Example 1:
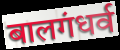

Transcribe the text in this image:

बालगंधर्व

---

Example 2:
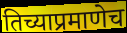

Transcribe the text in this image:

तिच्याप्रमाणेच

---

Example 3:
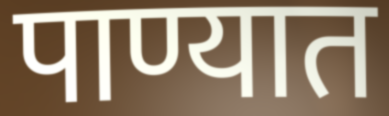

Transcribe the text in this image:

पाण्यात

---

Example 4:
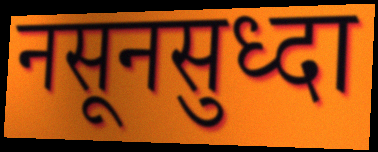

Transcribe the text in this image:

नसूनसुध्दा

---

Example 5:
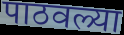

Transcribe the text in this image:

पाठवल्या